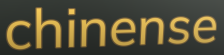
chinense